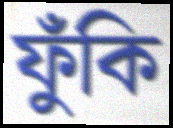
ফুঁকি